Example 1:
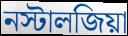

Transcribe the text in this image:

নস্টালজিয়া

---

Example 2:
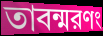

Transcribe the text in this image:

তাবন্মরণং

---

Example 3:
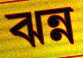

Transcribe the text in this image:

ঝন্ন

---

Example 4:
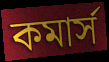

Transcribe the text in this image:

কমার্স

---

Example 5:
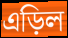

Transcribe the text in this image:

এড়িল